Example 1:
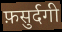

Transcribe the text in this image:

फ़सुर्दगी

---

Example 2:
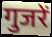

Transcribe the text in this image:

गुजरें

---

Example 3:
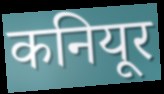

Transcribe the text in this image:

कनियूर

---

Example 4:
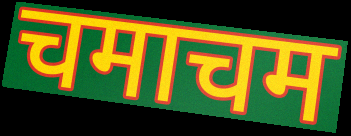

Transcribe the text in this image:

चमाचम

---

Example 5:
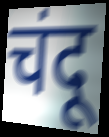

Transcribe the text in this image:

चंदू